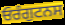
ਓਰੰਗੁਟਨਸ